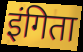
इंगिता